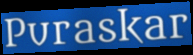
Puraskar